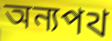
অন্যপথ